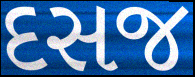
દસજ